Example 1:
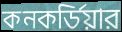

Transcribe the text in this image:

কনকর্ডিয়ার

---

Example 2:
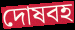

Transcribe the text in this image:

দোষবহ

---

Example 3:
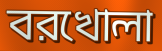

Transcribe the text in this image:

বরখোলা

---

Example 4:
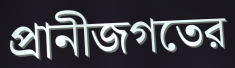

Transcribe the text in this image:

প্রানীজগতের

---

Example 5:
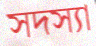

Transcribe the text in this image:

সদস্যা